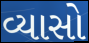
વ્યાસો